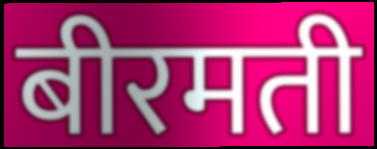
बीरमती